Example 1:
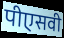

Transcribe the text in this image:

पीएसवी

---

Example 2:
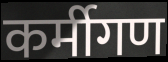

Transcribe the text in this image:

कर्मीगण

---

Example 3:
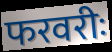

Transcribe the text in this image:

फरवरीः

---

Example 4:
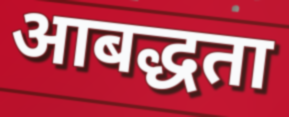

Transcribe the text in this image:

आबद्धता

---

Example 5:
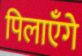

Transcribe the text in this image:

पिलाएँगे